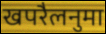
खपरैलनुमा